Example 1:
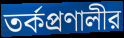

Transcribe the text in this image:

তর্কপ্রণালীর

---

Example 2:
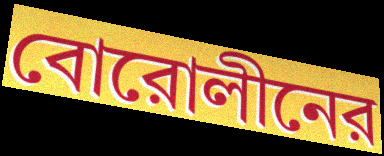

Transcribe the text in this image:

বোরোলীনের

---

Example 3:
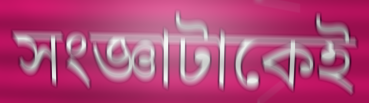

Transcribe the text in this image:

সংজ্ঞাটাকেই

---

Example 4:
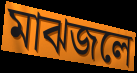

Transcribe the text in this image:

মাঝজলে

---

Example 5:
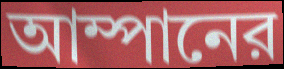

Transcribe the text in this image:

আম্পানের